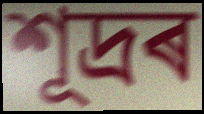
শূদ্ৰৰ